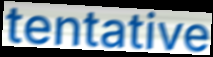
tentative